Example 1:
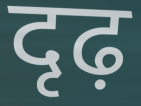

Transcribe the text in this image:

दृढ़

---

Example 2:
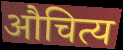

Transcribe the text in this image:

औचित्य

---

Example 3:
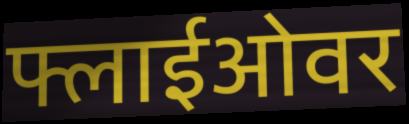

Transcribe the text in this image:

फ्लाईओवर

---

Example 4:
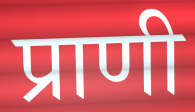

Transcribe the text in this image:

प्राणी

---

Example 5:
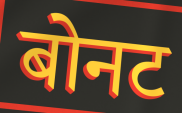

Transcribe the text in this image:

बोनट